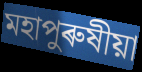
মহাপুৰুষীয়া